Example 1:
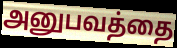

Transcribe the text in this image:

அனுபவத்தை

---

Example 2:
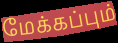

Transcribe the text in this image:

மேக்கப்பும்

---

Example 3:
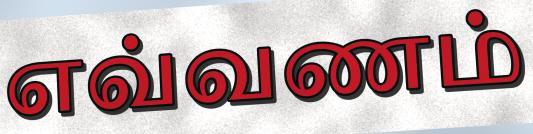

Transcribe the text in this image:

எவ்வணம்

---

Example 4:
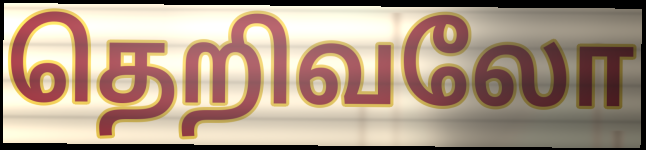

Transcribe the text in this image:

தெறிவலோ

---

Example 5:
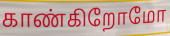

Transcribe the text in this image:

காண்கிறோமோ